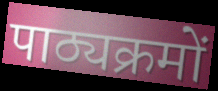
पाठ्यक्रमों